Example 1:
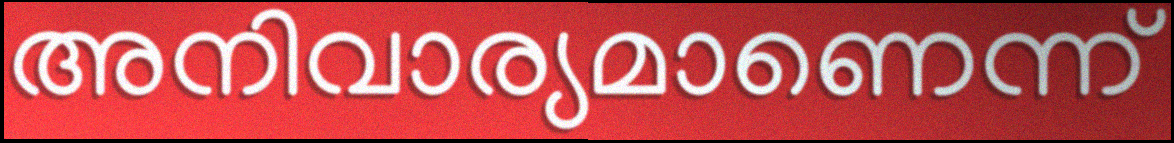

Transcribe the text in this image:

അനിവാര്യമാണെന്ന്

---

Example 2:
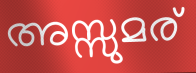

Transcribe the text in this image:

അസ്സുമര്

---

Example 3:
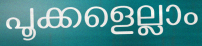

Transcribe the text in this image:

പൂക്കളെല്ലാം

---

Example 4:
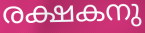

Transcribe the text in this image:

രക്ഷകനു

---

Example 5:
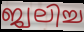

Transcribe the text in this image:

ജ്വലിച്ച